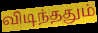
விடிந்ததும்